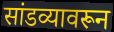
सांडव्यावरून